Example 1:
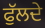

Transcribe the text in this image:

ਫੁੱਲਦੇ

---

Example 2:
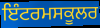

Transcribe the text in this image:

ਇੰਟਰਮਸਕੂਲਰ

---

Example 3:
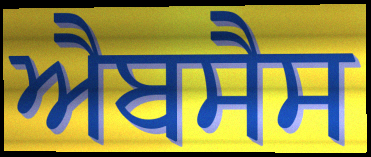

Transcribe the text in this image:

ਐਬਸੈਸ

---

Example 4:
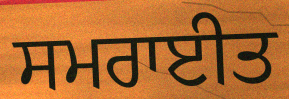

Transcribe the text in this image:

ਸਮਰਾਈਤ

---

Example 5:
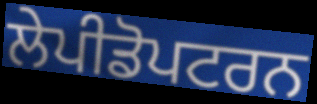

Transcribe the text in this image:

ਲੇਪੀਡੋਪਟਰਨ